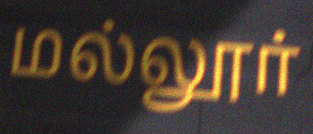
மல்லூர்